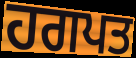
ਹਗਪਤ